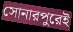
সোনারপুরেই